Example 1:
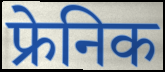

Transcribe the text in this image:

फ्रेनिक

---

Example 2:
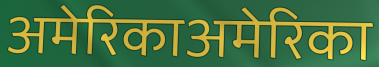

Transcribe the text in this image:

अमेरिकाअमेरिका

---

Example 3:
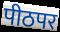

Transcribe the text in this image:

पीठपर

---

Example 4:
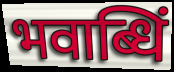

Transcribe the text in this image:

भवाब्धिं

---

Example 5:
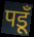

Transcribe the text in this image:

पडूँ